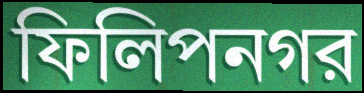
ফিলিপনগর